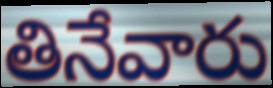
తినేవారు